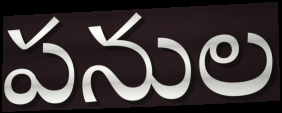
పనుల